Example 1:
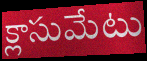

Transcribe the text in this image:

క్లాసుమేటు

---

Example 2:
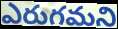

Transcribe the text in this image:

ఎరుగమని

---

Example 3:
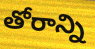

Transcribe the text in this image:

తోరాన్ని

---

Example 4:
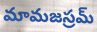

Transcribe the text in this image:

మామజస్రమ్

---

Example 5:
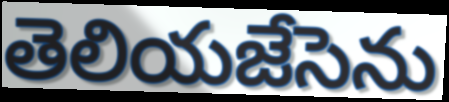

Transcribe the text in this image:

తెలియజేసెను